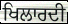
ਖਿਲਾਰਦੀ